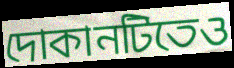
দোকানটিতেও